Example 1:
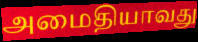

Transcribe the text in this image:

அமைதியாவது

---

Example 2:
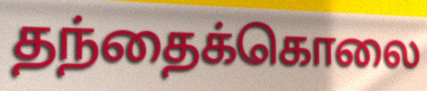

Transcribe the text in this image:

தந்தைக்கொலை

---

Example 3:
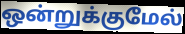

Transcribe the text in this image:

ஒன்றுக்குமேல்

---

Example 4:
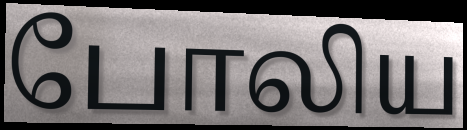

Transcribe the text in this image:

போலிய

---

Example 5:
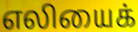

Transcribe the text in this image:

எலியைக்